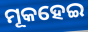
ମୂକହେଇ